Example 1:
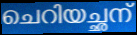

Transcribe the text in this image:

ചെറിയച്ഛന്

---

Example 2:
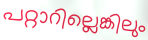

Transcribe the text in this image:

പറ്റാറില്ലെങ്കിലും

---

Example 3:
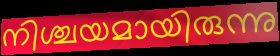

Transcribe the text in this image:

നിശ്ചയമായിരുന്നു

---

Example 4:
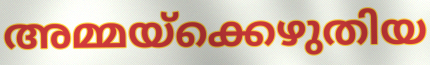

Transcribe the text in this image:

അമ്മയ്ക്കെഴുതിയ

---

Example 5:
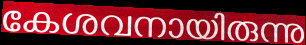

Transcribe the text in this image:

കേശവനായിരുന്നു